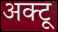
अक्टू